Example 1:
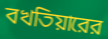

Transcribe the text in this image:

বখতিয়ারের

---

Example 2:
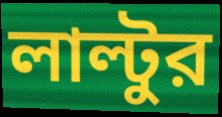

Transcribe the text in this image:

লাল্টুর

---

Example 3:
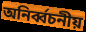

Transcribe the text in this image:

অনির্ব্বচনীয়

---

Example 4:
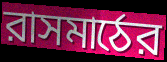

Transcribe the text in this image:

রাসমাঠের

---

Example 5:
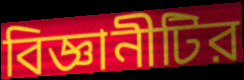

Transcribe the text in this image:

বিজ্ঞানীটির